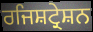
ਰਜਿਸ਼ਟ੍ਰੇਸ਼ਨ